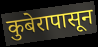
कुबेरापासून